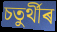
চতুৰ্থীৰ